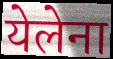
येलेना